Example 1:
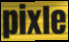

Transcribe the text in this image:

pixle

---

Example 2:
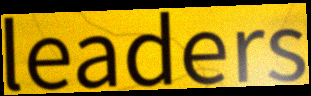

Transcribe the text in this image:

leaders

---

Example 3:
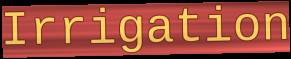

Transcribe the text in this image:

Irrigation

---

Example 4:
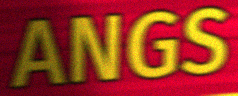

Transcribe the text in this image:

ANGS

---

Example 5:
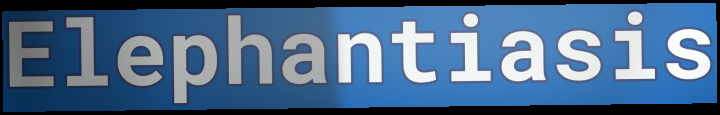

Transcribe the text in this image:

Elephantiasis